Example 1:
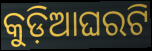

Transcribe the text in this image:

କୁଡ଼ିଆଘରଟି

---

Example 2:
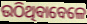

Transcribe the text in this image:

ଉଠିଥିବାବେଳେ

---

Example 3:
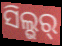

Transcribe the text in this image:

ସିଲ୍ଭର୍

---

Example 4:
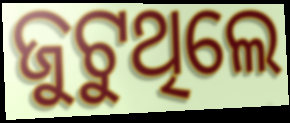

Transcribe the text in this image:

ଜୁଟୁଥିଲେ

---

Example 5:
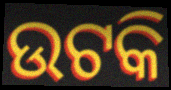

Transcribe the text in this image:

ଉଟକି